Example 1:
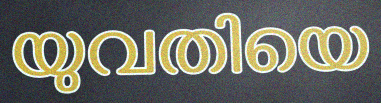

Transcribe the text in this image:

യുവതിയെ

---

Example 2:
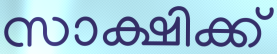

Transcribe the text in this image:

സാക്ഷിക്ക്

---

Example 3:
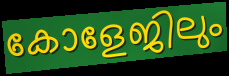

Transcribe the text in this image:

കോളേജിലും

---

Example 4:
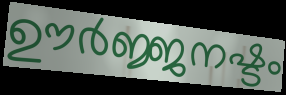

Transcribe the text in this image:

ഊർജ്ജനഷ്ടം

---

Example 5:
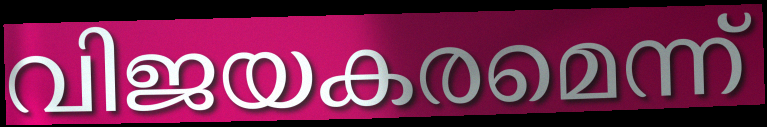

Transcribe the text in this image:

വിജയകരമെന്ന്